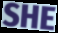
SHE